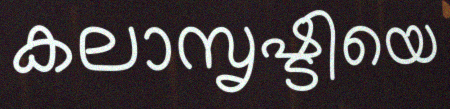
കലാസൃഷ്ടിയെ